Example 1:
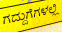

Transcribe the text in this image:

ಗದ್ದುಗೆಗಳಲ್ಲಿ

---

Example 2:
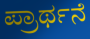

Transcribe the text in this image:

ಪ್ರಾರ್ಥನೆ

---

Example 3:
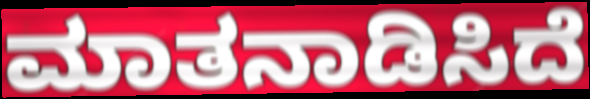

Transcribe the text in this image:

ಮಾತನಾಡಿಸಿದೆ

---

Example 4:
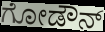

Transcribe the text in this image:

ಗೋಡೌನ್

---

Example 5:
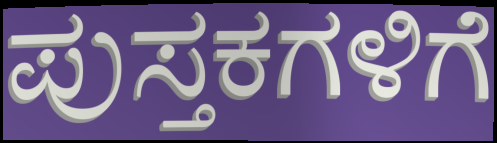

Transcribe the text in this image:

ಪುಸ್ತಕಗಳಿಗೆ